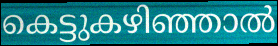
കെട്ടുകഴിഞ്ഞാൽ